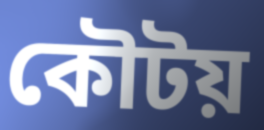
কৌটয়